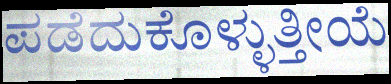
ಪಡೆದುಕೊಳ್ಳುತ್ತೀಯೆ